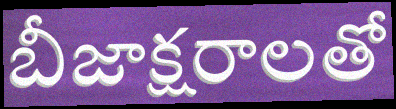
బీజాక్షరాలతో